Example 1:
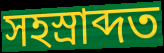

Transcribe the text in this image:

সহস্ৰাব্দত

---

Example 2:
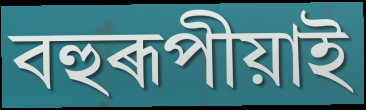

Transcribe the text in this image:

বহুৰূপীয়াই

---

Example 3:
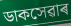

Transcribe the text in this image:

ডাকসেৱাৰ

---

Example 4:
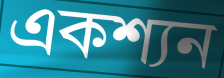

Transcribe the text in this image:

একশ্যন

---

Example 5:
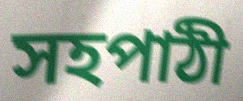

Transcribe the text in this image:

সহপাঠী